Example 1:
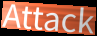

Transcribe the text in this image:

Attack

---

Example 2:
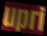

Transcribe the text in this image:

upri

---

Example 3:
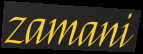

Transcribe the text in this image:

zamani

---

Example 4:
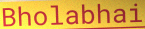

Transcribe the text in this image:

Bholabhai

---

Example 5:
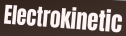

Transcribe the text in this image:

Electrokinetic